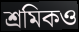
শ্রমিকও